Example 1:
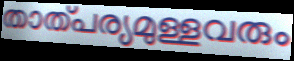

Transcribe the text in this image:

താത്പര്യമുള്ളവരും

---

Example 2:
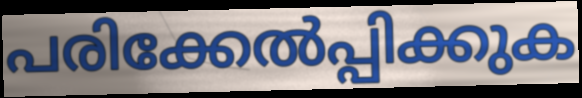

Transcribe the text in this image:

പരിക്കേൽപ്പിക്കുക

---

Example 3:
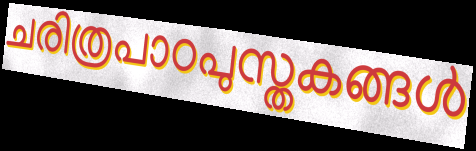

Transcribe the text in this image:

ചരിത്രപാഠപുസ്തകങ്ങൾ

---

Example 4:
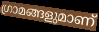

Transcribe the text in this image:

ഗ്രാമങ്ങളുമാണ്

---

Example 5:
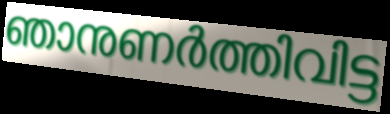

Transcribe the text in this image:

ഞാനുണർത്തിവിട്ട